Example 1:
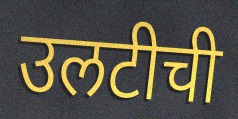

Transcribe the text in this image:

उलटीची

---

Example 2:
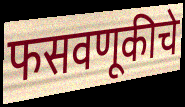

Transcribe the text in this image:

फसवणूकीचे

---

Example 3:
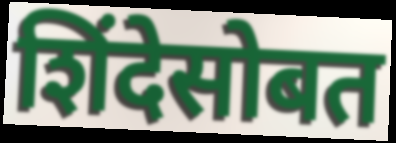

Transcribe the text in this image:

शिंदेसोबत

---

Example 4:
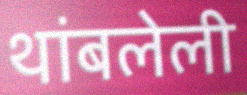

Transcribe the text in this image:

थांबलेली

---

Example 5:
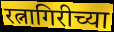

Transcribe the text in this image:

रत्नागिरीच्या